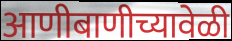
आणीबाणीच्यावेळी